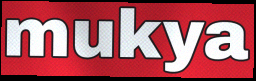
mukya